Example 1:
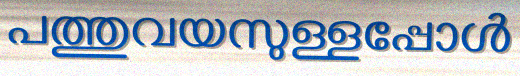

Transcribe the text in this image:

പത്തുവയസുള്ളപ്പോൾ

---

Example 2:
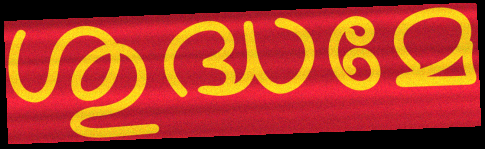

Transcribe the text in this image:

ശുദ്ധമേ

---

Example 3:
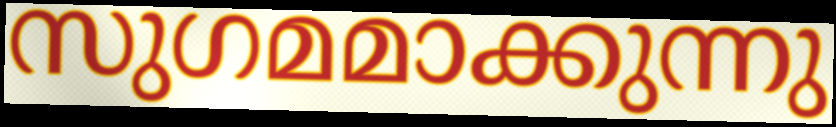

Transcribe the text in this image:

സുഗമമാക്കുന്നു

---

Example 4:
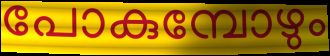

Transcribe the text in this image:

പോകുമ്പോഴും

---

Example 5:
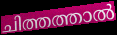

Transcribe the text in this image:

ചിത്തത്താൽ